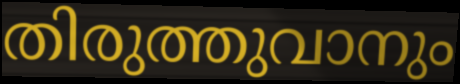
തിരുത്തുവാനും